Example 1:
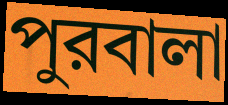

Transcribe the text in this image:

পুরবালা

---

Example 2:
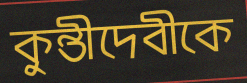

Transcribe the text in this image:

কুন্তীদেবীকে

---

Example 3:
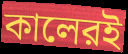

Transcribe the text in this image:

কালেরই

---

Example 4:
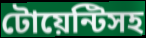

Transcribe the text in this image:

টোয়েন্টিসহ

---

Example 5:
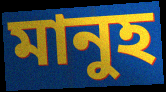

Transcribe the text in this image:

মানুহ